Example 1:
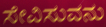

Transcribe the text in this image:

ಸೇವಿಸುವನು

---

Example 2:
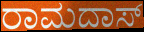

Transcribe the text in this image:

ರಾಮದಾಸ್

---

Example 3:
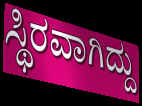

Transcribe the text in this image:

ಸ್ಥಿರವಾಗಿದ್ದು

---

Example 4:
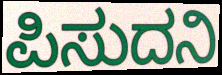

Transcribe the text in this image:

ಪಿಸುದನಿ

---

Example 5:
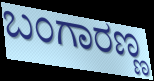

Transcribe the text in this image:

ಬಂಗಾರಣ್ಣ